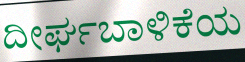
ದೀರ್ಘಬಾಳಿಕೆಯ